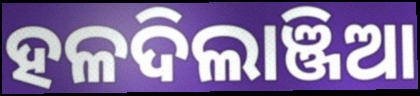
ହଳଦିଲାଞ୍ଜିଆ